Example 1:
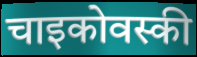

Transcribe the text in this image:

चाइकोवस्की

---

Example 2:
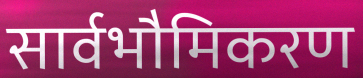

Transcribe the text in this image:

सार्वभौमिकरण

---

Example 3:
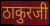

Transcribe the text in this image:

ठाकुरजी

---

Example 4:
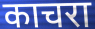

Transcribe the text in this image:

काचरा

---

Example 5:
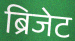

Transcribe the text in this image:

ब्रिजेट